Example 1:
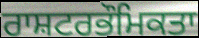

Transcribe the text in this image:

ਰਾਸ਼ਟਰਭੌਮਿਕਤਾ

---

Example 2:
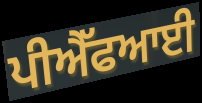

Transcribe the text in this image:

ਪੀਐੱਫਆਈ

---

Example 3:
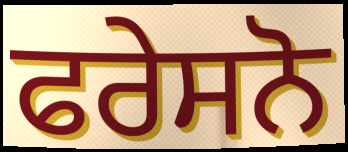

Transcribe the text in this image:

ਫਰੇਸਨੋ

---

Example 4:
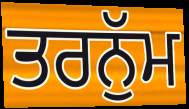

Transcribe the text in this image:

ਤਰਨੁੱਮ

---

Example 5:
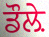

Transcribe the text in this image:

ਡੌਲ਼ੇ